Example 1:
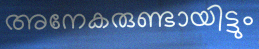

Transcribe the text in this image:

അനേകരുണ്ടായിട്ടും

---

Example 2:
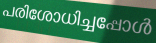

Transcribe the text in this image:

പരിശോധിച്ചപ്പോൾ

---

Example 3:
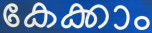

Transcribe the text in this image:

കേക്കാം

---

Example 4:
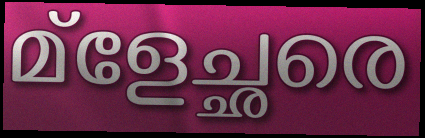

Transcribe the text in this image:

മ്ളേച്ഛരെ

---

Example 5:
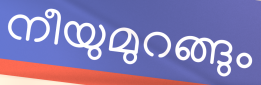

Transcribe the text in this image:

നീയുമുറങ്ങും